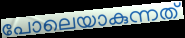
പോലെയാകുന്നത്